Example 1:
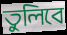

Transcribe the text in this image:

তুলিবে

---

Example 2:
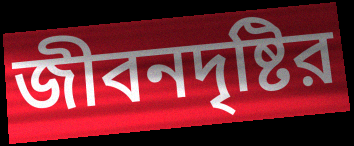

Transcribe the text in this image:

জীবনদৃষ্টির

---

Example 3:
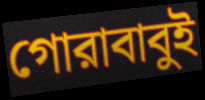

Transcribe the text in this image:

গোরাবাবুই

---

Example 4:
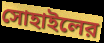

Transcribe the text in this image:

সোহাইলের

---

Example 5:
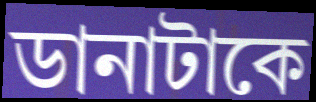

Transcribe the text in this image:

ডানাটাকে